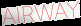
AIRWAY